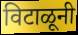
विटाळूनी